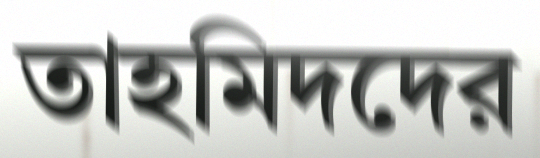
তাহমিদদের